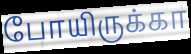
போயிருக்கா